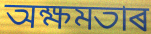
অক্ষমতাৰ